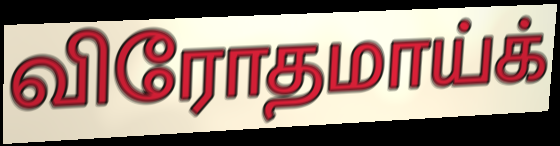
விரோதமாய்க்